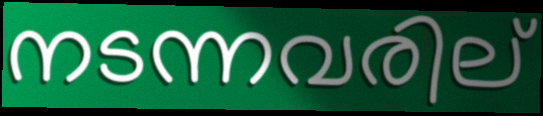
നടന്നവരില്